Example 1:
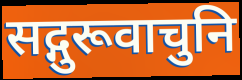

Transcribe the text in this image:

सद्गुरूवाचुनि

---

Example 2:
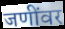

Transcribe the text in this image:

जणींवर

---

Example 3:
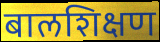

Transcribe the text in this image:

बालशिक्षण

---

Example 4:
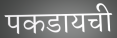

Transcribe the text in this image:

पकडायची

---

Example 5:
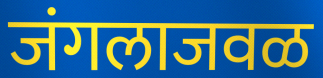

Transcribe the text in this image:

जंगलाजवळ